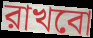
রাখবো